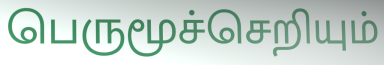
பெருமூச்செறியும்